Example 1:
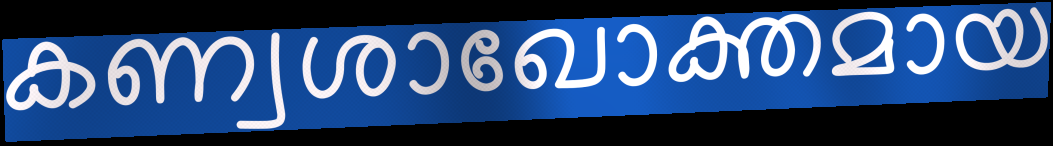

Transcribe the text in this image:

കണ്വശാഖോക്തമായ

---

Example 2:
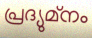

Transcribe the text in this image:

പ്രദ്യുമ്നം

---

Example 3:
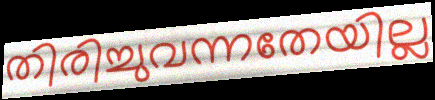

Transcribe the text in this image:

തിരിച്ചുവന്നതേയില്ല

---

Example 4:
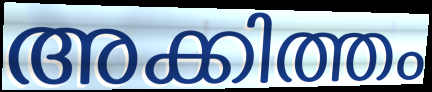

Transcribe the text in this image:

അക്കിത്തം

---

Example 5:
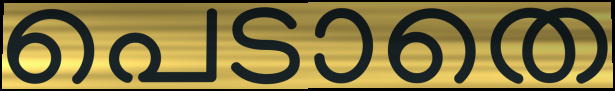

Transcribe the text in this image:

പെടാതെ